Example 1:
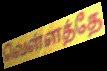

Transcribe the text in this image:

வெள்ளத்தே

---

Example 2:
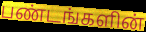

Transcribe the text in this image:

பண்டங்களின்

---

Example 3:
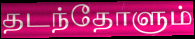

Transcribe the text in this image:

தடந்தோளும்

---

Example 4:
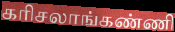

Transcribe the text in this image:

கரிசலாங்கண்ணி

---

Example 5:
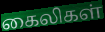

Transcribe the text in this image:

கைலிகள்